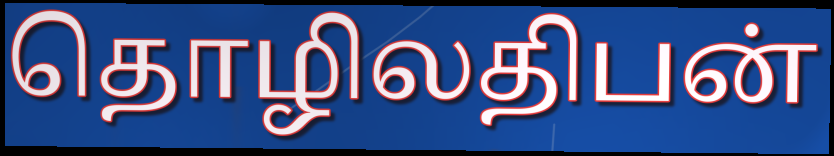
தொழிலதிபன்